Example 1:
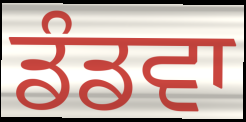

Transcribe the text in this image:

ਡੰਡਵਾ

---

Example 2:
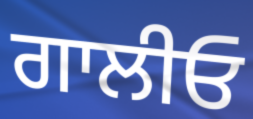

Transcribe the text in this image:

ਗਾਲੀਓ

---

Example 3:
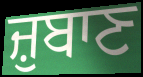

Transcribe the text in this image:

ਜ਼ੁਬਾਣ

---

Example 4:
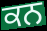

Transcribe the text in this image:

ਕਨ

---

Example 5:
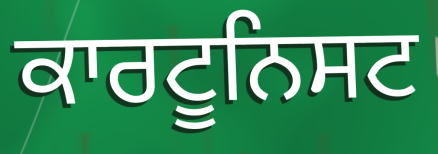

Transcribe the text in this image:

ਕਾਰਟੂਨਿਸਟ